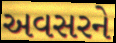
અવસરને